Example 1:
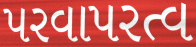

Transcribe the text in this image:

પરવાપરત્વ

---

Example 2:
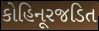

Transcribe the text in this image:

કોહિનૂરજડિત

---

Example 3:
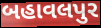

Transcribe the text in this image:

બહાવલપુર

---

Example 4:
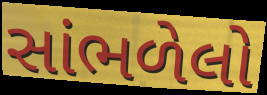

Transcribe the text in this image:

સાંભળેલો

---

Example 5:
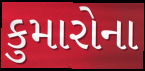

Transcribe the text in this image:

કુમારોના